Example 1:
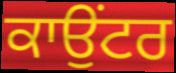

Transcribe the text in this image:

ਕਾਉਂਟਰ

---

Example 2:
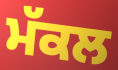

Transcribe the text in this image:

ਮੱਕਲ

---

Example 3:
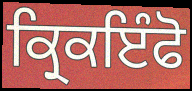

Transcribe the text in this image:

ਕ੍ਰਿਕਇੰਫੋ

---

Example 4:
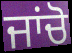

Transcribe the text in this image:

ਜਾਂਚੋ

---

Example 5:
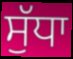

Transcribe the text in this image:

ਸੁੱਧਾ